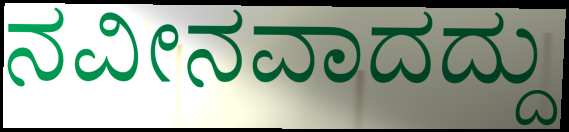
ನವೀನವಾದದ್ದು